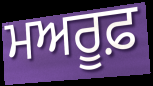
ਮਅਰੂਫ਼